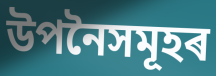
উপনৈসমূহৰ